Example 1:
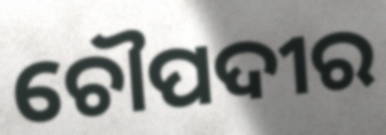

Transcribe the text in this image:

ଚୌପଦୀର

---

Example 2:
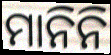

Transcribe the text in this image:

ମାନିନି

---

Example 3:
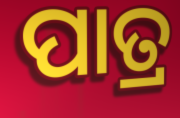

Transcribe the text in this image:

ପାତ୍ର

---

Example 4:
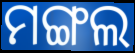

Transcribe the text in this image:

ମଙ୍ଗଲ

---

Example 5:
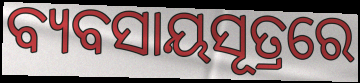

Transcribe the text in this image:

ବ୍ୟବସାୟସୂତ୍ରରେ